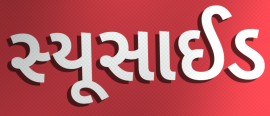
સ્યૂસાઈડ